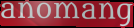
anomang